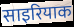
साइरियाक